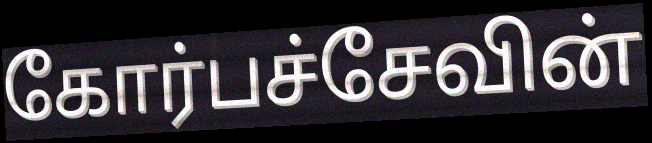
கோர்பச்சேவின்